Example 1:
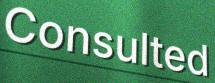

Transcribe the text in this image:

Consulted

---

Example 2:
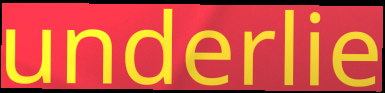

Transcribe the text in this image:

underlie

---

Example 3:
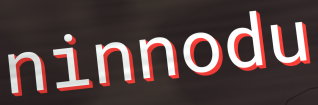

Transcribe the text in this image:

ninnodu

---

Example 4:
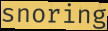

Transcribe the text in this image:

snoring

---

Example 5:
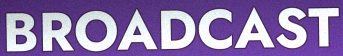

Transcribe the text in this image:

BROADCAST